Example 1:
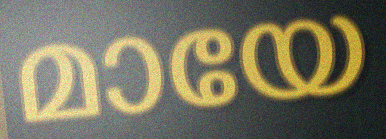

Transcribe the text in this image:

മായേ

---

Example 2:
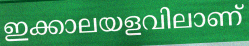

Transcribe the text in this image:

ഇക്കാലയളവിലാണ്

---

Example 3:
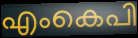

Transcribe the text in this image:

എംകെപി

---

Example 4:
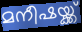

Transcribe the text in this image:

മനീഷയ്ക്ക്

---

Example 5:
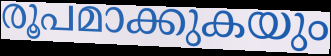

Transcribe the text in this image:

രൂപമാക്കുകയും